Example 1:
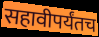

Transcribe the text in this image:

सहावीपर्यंतच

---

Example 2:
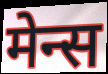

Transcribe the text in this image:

मेन्स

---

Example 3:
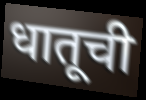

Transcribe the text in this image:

धातूची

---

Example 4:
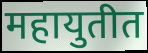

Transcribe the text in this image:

महायुतीत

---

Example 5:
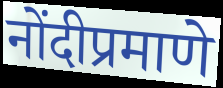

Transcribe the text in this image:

नोंदीप्रमाणे